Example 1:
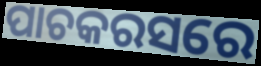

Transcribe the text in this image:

ପାଚକରସରେ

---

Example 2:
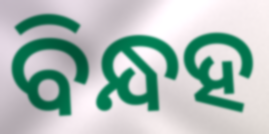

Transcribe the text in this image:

ବିନ୍ଧହ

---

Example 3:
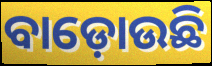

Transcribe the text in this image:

ବାଡ଼ୋଉଛି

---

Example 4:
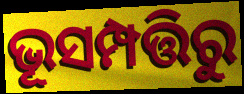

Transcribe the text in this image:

ଭୂସମ୍ପତ୍ତିରୁ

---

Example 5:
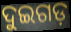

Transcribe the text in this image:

ଦୁଇଗଡ଼